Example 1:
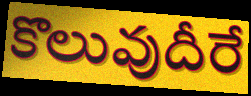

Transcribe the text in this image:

కొలువుదీరే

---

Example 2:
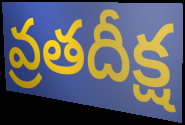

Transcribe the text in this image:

వ్రతదీక్ష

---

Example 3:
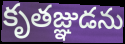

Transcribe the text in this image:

కృతజ్ఞుడను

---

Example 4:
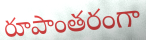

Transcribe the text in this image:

రూపాంతరంగా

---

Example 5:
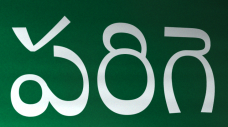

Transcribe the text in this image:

పరిగె